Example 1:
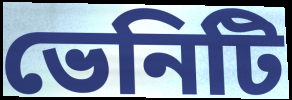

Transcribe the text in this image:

ভেনিটি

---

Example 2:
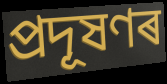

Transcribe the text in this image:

প্ৰদূষণৰ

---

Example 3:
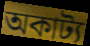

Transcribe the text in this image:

অকাট্য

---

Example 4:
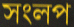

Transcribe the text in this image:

সংলপ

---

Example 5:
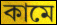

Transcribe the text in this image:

কামে